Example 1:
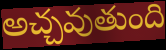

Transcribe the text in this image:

అచ్చవుతుంది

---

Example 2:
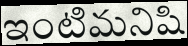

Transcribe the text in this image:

ఇంటిమనిషి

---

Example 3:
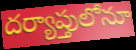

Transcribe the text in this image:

దర్యాప్తులోనూ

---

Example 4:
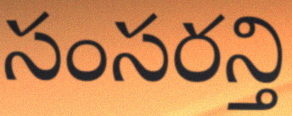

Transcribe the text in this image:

సంసరన్తి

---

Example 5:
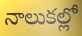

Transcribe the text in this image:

నాలుకల్లో